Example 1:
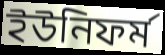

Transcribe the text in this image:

ইউনিফৰ্ম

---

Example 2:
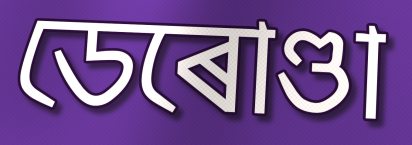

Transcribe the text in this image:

ডেৰোণ্ডা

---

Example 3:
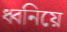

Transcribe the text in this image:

ধ্বনিয়ে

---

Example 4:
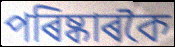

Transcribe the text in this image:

পৰিষ্কাৰকৈ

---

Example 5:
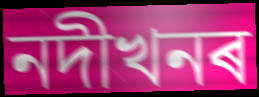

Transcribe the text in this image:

নদীখনৰ